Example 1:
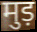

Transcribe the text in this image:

मुड़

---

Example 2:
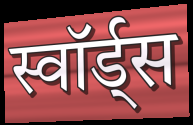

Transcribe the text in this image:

स्वॉर्ड्स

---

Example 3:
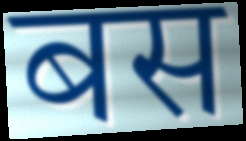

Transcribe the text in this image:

बस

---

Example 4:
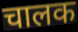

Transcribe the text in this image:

चालक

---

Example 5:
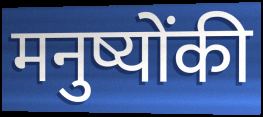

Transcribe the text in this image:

मनुष्योंकी